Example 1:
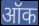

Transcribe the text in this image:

ऑक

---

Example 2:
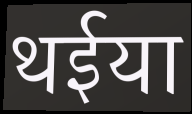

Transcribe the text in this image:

थईया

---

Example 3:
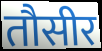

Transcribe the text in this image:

तौसीर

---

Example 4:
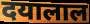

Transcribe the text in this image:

दयालाल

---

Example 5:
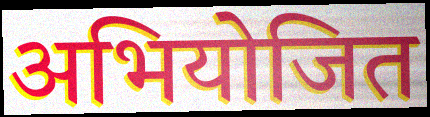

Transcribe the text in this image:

अभियोजित